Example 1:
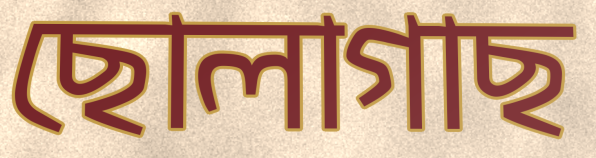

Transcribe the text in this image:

ছোলাগাছ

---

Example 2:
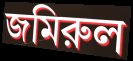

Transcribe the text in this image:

জমিরুল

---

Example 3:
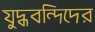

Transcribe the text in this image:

যুদ্ধবন্দিদের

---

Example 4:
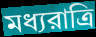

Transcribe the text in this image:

মধ্যরাত্রি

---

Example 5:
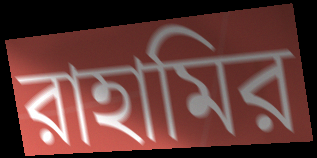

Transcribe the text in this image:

রাহামির